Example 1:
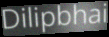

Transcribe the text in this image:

Dilipbhai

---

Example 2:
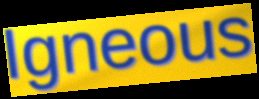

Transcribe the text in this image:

Igneous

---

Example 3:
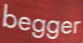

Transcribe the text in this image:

begger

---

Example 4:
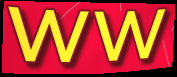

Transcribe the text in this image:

ww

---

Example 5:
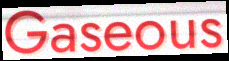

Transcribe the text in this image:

Gaseous